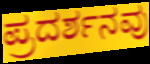
ಪ್ರದರ್ಶನವು